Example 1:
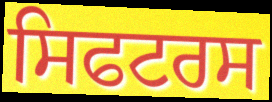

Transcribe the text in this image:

ਸਿਫਟਰਸ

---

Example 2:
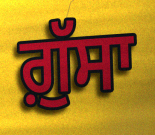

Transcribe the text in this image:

ਗ਼ੁੱਸਾ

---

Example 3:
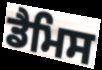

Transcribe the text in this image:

ਡੈਮਿਸ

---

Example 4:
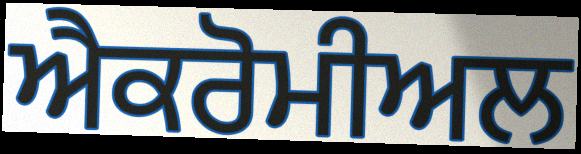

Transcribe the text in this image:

ਐਕਰੋਮੀਅਲ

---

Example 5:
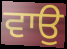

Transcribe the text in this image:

ਵਾਉ